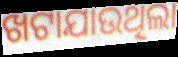
ଖଟାଯାଉଥିଲା